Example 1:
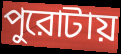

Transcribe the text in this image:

পুরোটায়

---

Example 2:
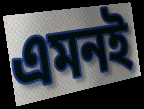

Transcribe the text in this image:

এমনই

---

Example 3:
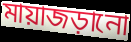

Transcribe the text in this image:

মায়াজড়ানো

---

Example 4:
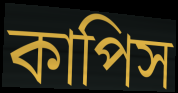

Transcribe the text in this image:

কাপিস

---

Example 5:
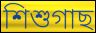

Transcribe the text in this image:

শিশুগাছ